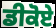
ਡੀਕੋਏ